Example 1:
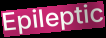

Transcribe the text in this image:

Epileptic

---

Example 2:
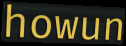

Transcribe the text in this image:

howun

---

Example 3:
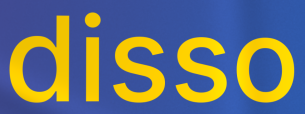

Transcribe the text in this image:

disso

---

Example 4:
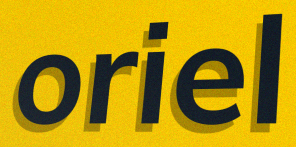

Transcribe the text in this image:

oriel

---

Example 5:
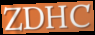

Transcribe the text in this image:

ZDHC